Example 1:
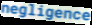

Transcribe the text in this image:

negligence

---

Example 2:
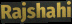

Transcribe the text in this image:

Rajshahi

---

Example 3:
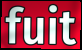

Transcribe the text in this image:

fuit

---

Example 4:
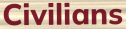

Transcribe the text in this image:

Civilians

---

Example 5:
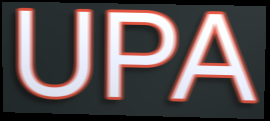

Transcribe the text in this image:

UPA